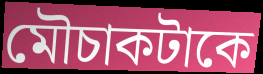
মৌচাকটাকে